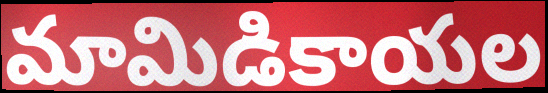
మామిడికాయల